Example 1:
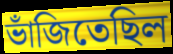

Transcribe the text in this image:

ভাঁজিতেছিল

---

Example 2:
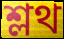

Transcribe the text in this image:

শ্লথ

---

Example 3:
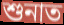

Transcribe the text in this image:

শুনাত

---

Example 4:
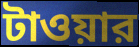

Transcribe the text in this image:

টাওয়ার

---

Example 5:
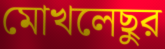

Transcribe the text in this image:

মোখলেছুর